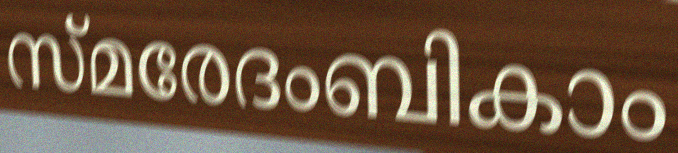
സ്മരേദംബികാം